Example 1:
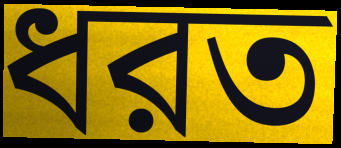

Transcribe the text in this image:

ধরত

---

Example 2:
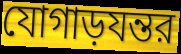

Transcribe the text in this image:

যোগাড়যন্তর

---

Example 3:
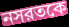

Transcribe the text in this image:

নসরতকে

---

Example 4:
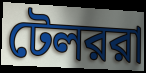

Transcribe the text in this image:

টেলররা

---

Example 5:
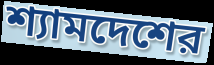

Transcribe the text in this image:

শ্যামদেশের